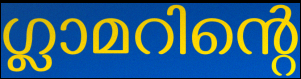
ഗ്ലാമറിന്റെ